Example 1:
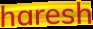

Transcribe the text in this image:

haresh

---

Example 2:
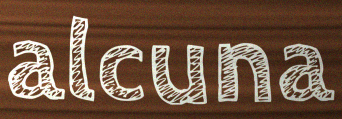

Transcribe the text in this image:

alcuna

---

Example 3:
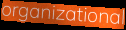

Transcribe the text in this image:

organizational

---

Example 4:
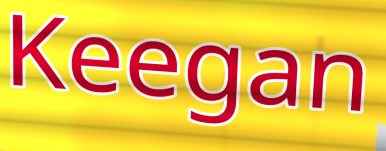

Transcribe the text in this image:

Keegan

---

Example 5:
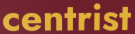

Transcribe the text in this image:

centrist